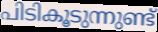
പിടികൂടുന്നുണ്ട്